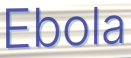
Ebola